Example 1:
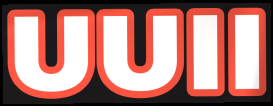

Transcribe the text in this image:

UUII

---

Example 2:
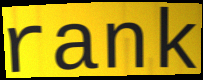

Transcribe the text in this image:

rank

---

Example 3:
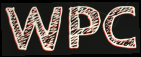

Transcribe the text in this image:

WPC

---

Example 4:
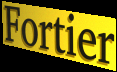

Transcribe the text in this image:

Fortier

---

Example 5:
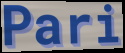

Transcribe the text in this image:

Pari